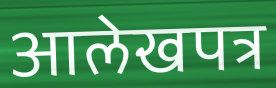
आलेखपत्र